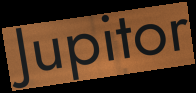
Jupitor